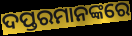
ଦପ୍ତରମାନଙ୍କରେ